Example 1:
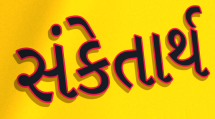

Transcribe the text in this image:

સંકેતાર્થ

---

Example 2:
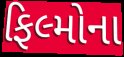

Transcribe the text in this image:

ફિલ્મોના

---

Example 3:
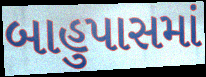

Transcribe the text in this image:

બાહુપાસમાં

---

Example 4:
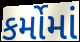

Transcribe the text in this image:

કર્મોમાં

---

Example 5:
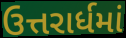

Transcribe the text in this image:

ઉત્તરાર્ધમાં